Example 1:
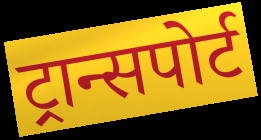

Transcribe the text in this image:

ट्रान्सपोर्ट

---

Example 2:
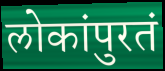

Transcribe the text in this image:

लोकांपुरतं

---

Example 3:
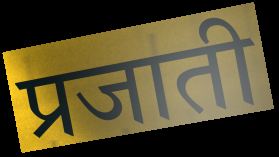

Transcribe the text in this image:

प्रजाती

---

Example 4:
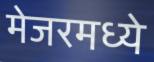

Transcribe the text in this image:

मेजरमध्ये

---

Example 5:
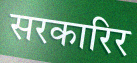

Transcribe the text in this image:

सरकारिर